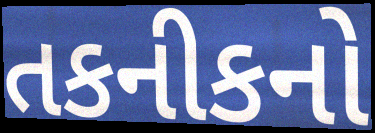
તકનીકનો